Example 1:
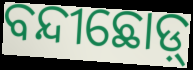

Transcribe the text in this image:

ବନ୍ଦୀଛୋଡ଼୍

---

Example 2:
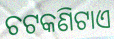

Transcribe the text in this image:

ଚଟକଣିଟାଏ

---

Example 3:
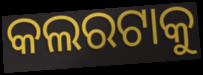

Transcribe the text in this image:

କଲରଟାକୁ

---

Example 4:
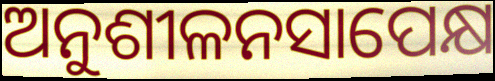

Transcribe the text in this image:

ଅନୁଶୀଳନସାପେକ୍ଷ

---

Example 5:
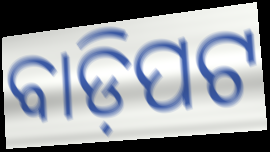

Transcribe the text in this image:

ବାଡ଼ିପଟ